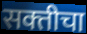
सक्‍तीचा